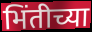
भिंतीच्या